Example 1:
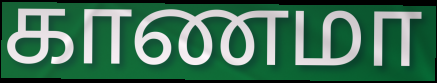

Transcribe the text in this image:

காணமா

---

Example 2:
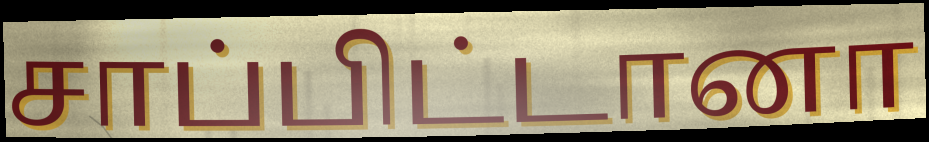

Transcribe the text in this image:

சாப்பிட்டானா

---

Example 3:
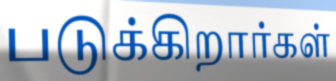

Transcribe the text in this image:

படுக்கிறார்கள்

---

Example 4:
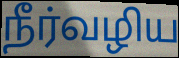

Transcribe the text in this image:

நீர்வழிய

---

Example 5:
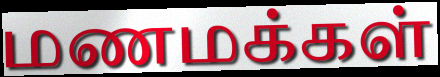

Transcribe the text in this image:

மணமக்கள்